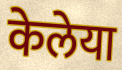
केलेया